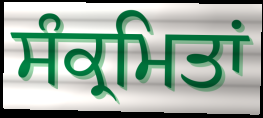
ਸੰਕ੍ਰਮਿਤਾਂ